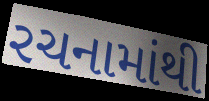
રચનામાંથી